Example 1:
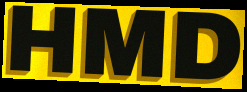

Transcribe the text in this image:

HMD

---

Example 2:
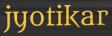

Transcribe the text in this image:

jyotikar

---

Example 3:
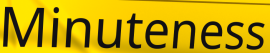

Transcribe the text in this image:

Minuteness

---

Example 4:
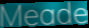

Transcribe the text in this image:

Meade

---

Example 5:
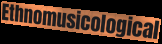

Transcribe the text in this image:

Ethnomusicological